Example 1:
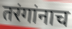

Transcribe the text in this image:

तरंगांनाच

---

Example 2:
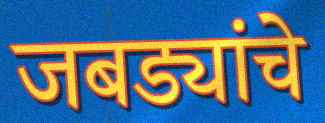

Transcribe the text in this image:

जबड्यांचे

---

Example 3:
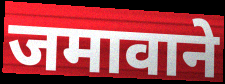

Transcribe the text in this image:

जमावाने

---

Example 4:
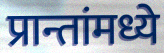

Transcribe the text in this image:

प्रान्तांमध्ये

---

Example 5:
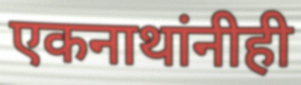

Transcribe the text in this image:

एकनाथांनीही